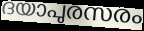
ദയാപുരസരം